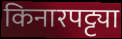
किनारपट्ट्या